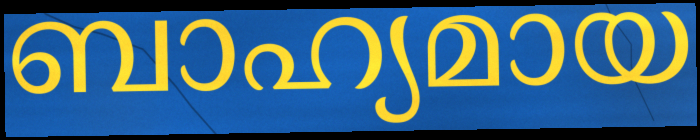
ബാഹ്യമായ